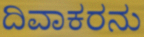
ದಿವಾಕರನು